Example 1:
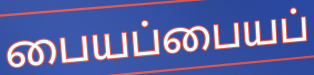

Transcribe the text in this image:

பையப்பையப்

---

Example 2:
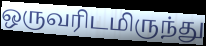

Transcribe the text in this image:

ஒருவரிடமிருந்து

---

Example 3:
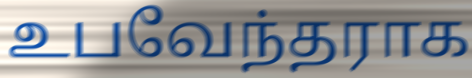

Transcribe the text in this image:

உபவேந்தராக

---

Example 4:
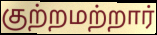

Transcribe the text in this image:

குற்றமற்றார்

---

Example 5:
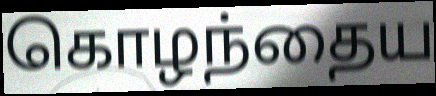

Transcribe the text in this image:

கொழந்தைய